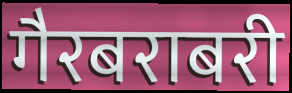
गैरबराबरी